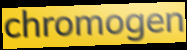
chromogen